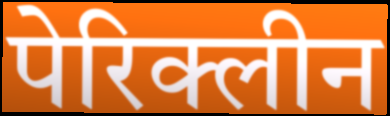
पेरिक्लीन